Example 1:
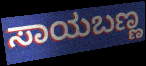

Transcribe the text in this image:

ಸಾಯಬಣ್ಣ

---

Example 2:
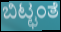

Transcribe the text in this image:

ಬಿಟ್ಟಂತೆ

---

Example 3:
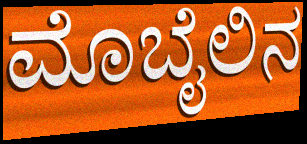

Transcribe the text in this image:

ಮೊಬೈಲಿನ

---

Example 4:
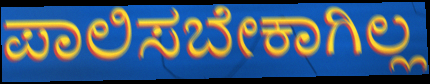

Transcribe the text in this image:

ಪಾಲಿಸಬೇಕಾಗಿಲ್ಲ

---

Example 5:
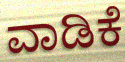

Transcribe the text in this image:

ವಾಡಿಕೆ